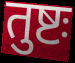
तुष्टः